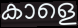
കാളെ